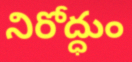
నిరోద్ధుం